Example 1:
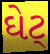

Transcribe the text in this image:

ઘેટ્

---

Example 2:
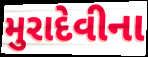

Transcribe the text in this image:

મુરાદેવીના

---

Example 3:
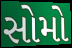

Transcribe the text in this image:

સોમો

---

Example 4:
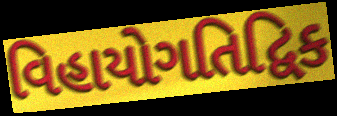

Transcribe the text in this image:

વિહાયોગતિદ્વિક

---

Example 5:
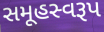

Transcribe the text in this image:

સમૂહસ્વરૂપ